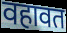
वहावत